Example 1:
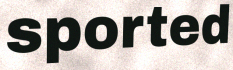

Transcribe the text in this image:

sported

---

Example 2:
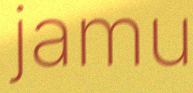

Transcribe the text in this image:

jamu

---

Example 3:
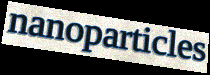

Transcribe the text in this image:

nanoparticles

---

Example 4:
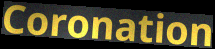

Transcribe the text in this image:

Coronation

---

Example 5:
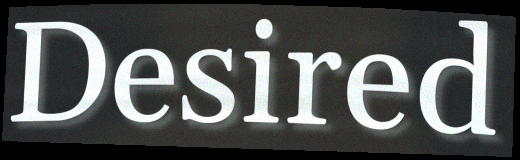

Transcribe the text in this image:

Desired